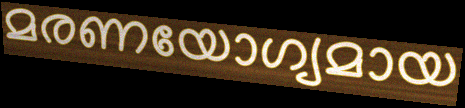
മരണയോഗ്യമായ